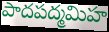
పాదపద్మమిహ